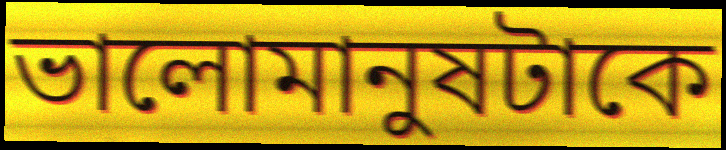
ভালোমানুষটাকে